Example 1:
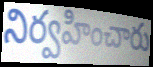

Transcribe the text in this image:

నిర్వహించారు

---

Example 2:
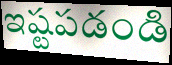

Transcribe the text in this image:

ఇష్టపడండి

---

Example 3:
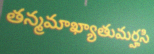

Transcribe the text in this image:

తన్మమాఖ్యాతుమర్హసి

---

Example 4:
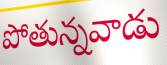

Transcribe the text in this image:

పోతున్నవాడు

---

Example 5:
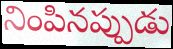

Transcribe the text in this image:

నింపినప్పుడు